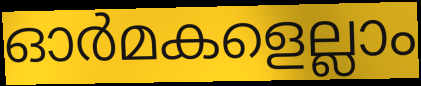
ഓർമകളെല്ലാം